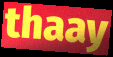
thaay